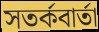
সতর্কবার্তা